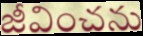
జీవించను